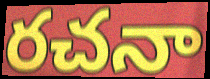
రచనా